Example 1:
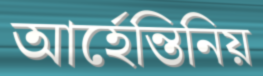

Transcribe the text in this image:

আর্হেন্তিনিয়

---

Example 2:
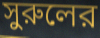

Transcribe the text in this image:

সুরুলের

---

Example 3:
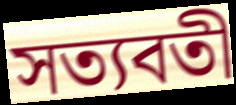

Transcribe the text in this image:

সত্যবতী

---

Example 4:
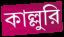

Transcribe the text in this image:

কাল্লুরি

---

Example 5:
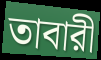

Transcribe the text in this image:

তাবারী